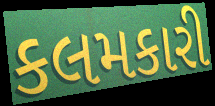
કલમકારી